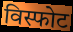
विस्फोट